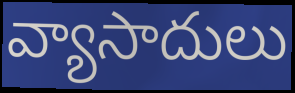
వ్యాసాదులు